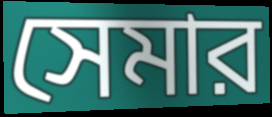
সেমার